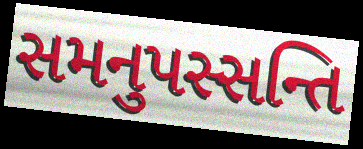
સમનુપસ્સન્તિ